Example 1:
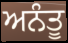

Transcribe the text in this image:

ਅਨੰਤੂ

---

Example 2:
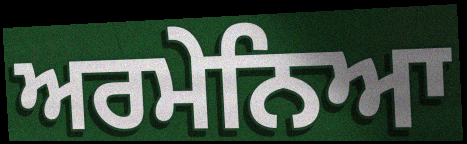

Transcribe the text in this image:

ਅਰਮੇਨਿਆ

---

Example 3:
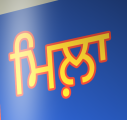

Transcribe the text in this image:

ਮਿਲ਼ਾ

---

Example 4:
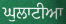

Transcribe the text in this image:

ਘੁਲਾਟੀਆ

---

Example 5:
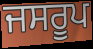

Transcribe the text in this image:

ਜਸਰੂਪ